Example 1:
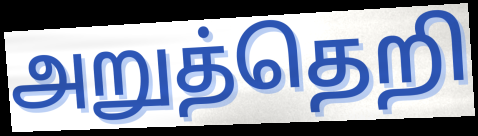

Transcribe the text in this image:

அறுத்தெறி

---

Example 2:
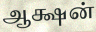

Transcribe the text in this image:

ஆக்ஷன்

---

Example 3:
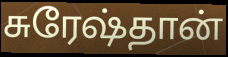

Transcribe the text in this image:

சுரேஷ்தான்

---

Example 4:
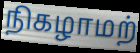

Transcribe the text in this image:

நிகழாமற்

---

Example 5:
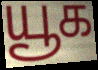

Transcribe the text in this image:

யூக